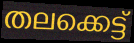
തലക്കെട്ട്